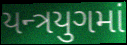
યન્ત્રયુગમાં